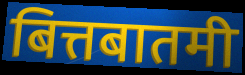
बित्तबातमी